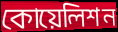
কোয়েলিশন